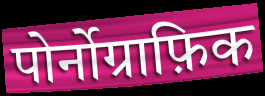
पोर्नोग्राफ़िक